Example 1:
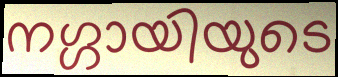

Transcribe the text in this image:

നഗ്ഗായിയുടെ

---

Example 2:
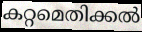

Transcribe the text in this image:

കറ്റമെതിക്കൽ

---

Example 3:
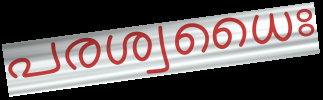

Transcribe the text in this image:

പരശ്വധൈഃ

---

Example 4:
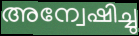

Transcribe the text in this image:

അന്വേഷിച്ചു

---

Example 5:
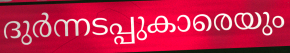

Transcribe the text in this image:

ദുർന്നടപ്പുകാരെയും